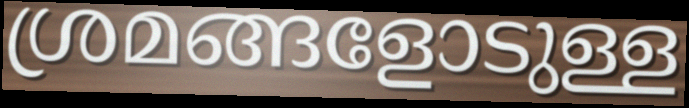
ശ്രമങ്ങളോടുള്ള